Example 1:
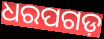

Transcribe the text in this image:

ଧରପଗଡ଼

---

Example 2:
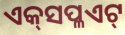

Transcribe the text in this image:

ଏକ୍‍ସପ୍ଳଏଟ୍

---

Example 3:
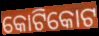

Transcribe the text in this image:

କୋଟିକୋଟ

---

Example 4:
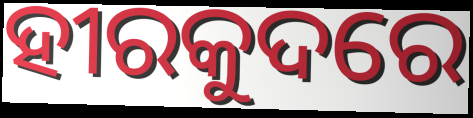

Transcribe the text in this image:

ହୀରକୁଦରେ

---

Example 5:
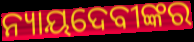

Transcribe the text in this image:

ନ୍ୟାୟଦେବୀଙ୍କର